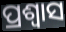
ପ୍ରଶ୍ୱାସ